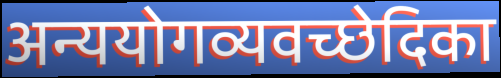
अन्ययोगव्यवच्छेदिका